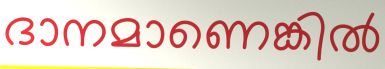
ദാനമാണെങ്കിൽ